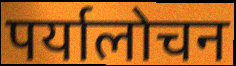
पर्यालोचन